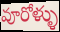
వూరోళ్ళు